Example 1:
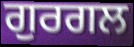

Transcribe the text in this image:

ਗੁਰਗਲ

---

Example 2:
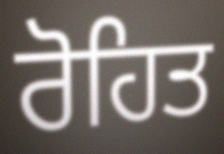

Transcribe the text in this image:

ਰੋਹਿਤ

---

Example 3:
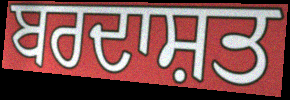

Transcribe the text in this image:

ਬਰਦਾਸ਼ਤ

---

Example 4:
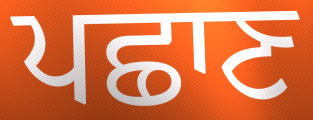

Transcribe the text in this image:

ਪਛਾਣ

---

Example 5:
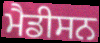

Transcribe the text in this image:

ਮੈਡੀਸਨ